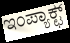
ಇಂಪ್ಯಾಕ್ಟ್